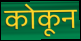
कोकून